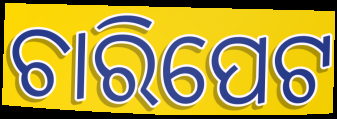
ଚାରିପେଟ